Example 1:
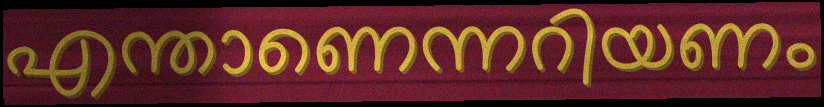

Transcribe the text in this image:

എന്താണെന്നറിയണം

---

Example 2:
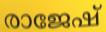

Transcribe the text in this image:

രാജേഷ്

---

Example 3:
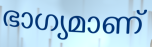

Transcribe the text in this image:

ഭാഗ്യമാണ്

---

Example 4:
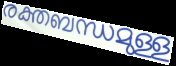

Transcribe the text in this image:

രക്തബന്ധമുള്ള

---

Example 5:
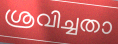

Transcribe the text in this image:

ശ്രവിച്ചതാ